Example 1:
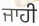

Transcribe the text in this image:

ਜਾਹੀ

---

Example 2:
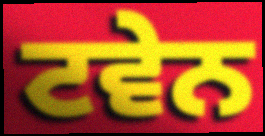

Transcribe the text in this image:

ਟਵੇਨ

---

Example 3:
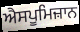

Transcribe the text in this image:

ਐਸਪੂਮਿਜ਼ਾਨ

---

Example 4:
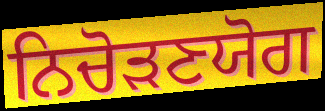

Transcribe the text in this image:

ਨਿਚੋੜਣਯੋਗ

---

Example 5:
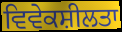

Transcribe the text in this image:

ਵਿਵੇਕਸ਼ੀਲਤਾ